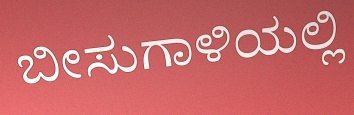
ಬೀಸುಗಾಳಿಯಲ್ಲಿ